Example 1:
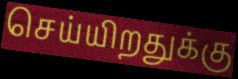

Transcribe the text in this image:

செய்யிறதுக்கு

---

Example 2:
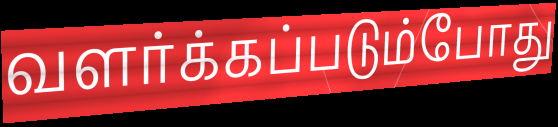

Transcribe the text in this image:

வளர்க்கப்படும்போது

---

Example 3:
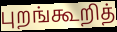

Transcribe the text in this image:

புறங்கூறித்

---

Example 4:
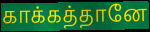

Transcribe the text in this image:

காக்கத்தானே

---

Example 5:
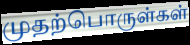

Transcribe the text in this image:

முதற்பொருள்கள்